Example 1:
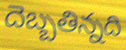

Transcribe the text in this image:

దెబ్బతిన్నది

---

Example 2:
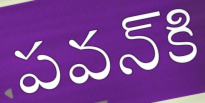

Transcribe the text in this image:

పవన్‌కి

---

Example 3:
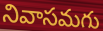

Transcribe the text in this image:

నివాసమగు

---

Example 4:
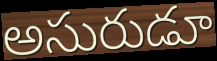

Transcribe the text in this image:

అసురుడూ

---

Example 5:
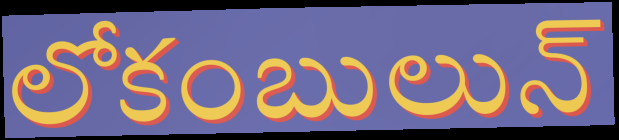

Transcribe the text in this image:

లోకంబులున్